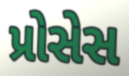
પ્રોસેસ